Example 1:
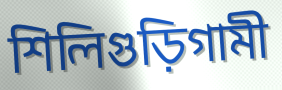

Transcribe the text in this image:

শিলিগুড়িগামী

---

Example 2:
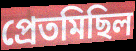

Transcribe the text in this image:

প্রেতমিছিল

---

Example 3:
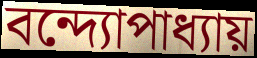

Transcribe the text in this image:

বন্দ্যোপাধ্যায়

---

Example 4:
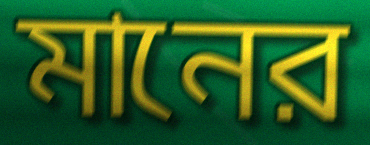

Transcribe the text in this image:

মানের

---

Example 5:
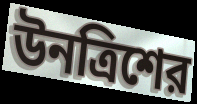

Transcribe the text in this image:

উনত্রিশের